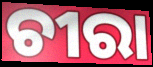
ଚୀରା